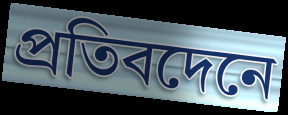
প্রতিবদেনে